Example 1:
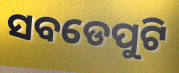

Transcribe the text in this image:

ସବଡେପୁଟି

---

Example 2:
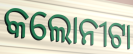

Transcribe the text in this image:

କଲୋନୀଟା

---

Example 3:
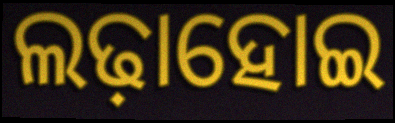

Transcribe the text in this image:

ଲଢ଼ାହୋଇ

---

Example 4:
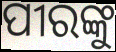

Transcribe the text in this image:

ପୀରଙ୍କୁ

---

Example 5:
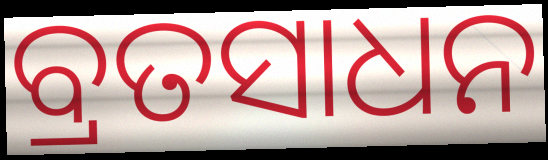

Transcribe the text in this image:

ବ୍ରତସାଧନ